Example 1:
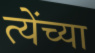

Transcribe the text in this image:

त्येंच्या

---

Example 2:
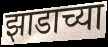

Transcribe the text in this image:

झाडाच्या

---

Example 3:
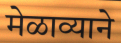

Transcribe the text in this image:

मेळाव्याने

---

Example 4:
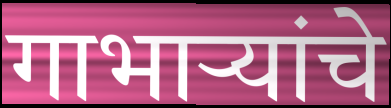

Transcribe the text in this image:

गाभाऱ्यांचे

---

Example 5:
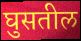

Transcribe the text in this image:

घुसतील